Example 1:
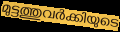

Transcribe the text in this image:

മുട്ടത്തുവർക്കിയുടെ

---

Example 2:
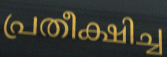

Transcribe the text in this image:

പ്രതീക്ഷിച്ച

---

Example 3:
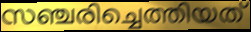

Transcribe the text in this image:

സഞ്ചരിച്ചെത്തിയത്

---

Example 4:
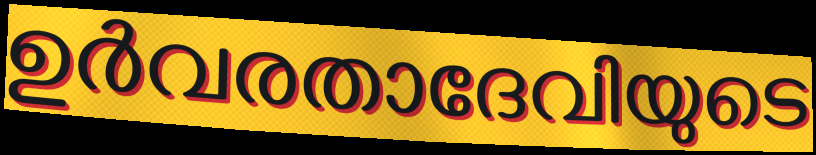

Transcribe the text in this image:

ഉർവരതാദേവിയുടെ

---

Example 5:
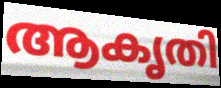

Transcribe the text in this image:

ആകൃതി